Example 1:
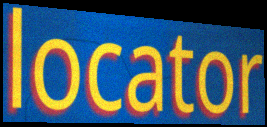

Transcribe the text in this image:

locator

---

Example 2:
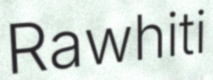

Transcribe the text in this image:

Rawhiti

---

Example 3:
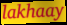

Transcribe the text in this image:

lakhaay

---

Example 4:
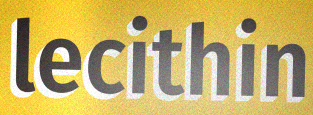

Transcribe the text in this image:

lecithin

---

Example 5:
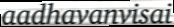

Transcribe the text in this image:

aadhavanvisai